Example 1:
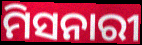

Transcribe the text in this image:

ମିସନାରୀ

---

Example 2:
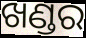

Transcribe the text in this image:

ଖଣ୍ଡର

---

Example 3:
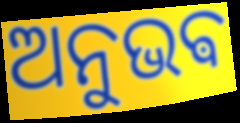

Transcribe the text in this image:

ଅନୁଭଵ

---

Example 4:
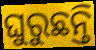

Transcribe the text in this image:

ଘୁରୁଛନ୍ତି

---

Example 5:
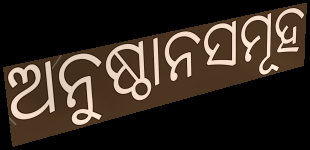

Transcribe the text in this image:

ଅନୁଷ୍ଠାନସମୂହ